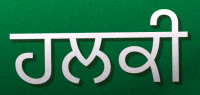
ਹਲਕੀ